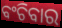
ବଂଚିବାର